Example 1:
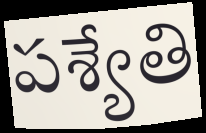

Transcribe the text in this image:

పశ్యేతి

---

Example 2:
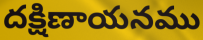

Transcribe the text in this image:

దక్షిణాయనము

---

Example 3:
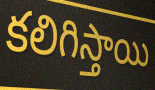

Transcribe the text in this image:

కలిగిస్తాయి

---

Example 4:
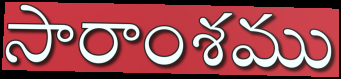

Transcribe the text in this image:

సారాంశము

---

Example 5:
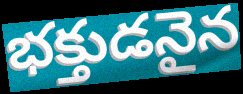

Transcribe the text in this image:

భక్తుడనైన